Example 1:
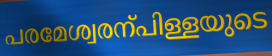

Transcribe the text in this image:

പരമേശ്വരന്പിള്ളയുടെ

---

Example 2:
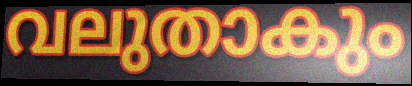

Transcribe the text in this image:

വലുതാകും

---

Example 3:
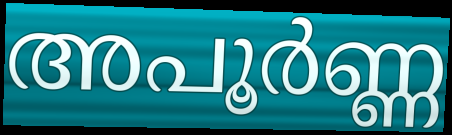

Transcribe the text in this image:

അപൂർണ്ണ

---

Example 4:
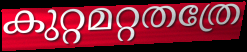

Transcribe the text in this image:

കുറ്റമറ്റതത്രേ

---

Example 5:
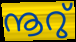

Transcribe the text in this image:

നൂറു്